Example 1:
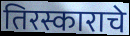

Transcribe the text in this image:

तिरस्काराचे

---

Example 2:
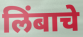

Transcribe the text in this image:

लिंबाचे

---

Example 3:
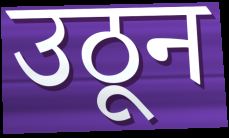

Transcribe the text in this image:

उठून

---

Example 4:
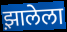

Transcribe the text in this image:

झ़ालेला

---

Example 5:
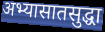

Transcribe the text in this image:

अभ्यासातसुद्धा